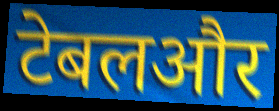
टेबलऔर